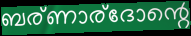
ബര്ണാര്ദോന്റെ